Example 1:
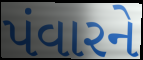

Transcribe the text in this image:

પંવારને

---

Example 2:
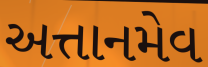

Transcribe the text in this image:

અત્તાનમેવ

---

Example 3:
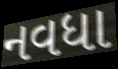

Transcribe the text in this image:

નવધા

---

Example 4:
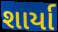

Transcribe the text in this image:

શાર્યા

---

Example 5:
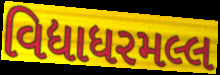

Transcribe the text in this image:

વિદ્યાધરમલ્લ